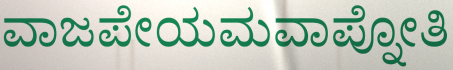
ವಾಜಪೇಯಮವಾಪ್ನೋತಿ